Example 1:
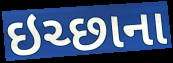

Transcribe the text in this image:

ઇચ્છાના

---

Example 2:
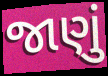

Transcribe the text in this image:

જાણું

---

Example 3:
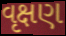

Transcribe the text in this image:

વૃક્ષણ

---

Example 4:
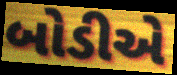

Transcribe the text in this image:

બોડીએ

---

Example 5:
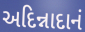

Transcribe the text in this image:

અદિન્નાદાનં